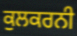
ਕੁਲਕਰਨੀ